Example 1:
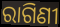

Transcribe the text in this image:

ରାଗିଣୀ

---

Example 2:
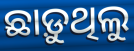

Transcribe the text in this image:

ଛାଡ଼ୁଥିଲୁ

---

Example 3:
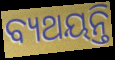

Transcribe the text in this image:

ବ୍ୟଥୟନ୍ତି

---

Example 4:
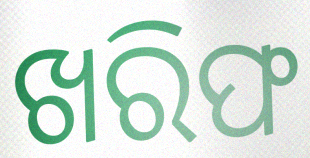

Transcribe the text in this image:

ଖରିଫ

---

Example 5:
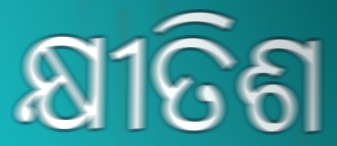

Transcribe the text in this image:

କ୍ଷୀତିଶ